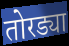
तोरड्या